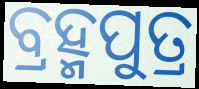
ବ୍ରହ୍ମପୁତ୍ର